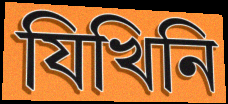
যিখিনি